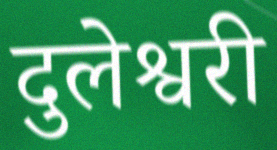
दुलेश्वरी